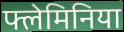
फ्लेमिनिया